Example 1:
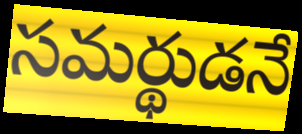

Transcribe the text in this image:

సమర్థుడనే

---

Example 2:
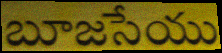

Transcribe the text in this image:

బూజసేయు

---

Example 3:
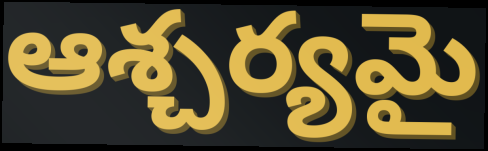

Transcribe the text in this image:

ఆశ్చర్యమై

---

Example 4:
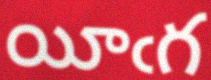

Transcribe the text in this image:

యీఁగ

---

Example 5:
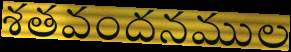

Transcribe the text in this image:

శతవందనముల